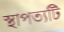
স্থাপত্যটি